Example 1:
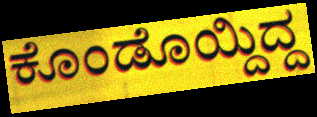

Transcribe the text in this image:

ಕೊಂಡೊಯ್ದಿದ್ದ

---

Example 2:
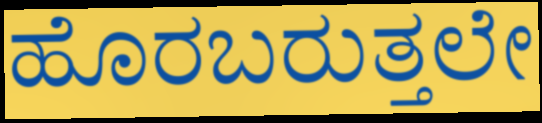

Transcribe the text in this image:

ಹೊರಬರುತ್ತಲೇ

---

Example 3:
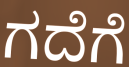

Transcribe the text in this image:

ಗದೆಗೆ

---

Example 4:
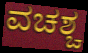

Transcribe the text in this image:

ವಚಶ್ಚ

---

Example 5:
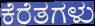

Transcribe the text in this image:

ಕೆರೆತಗಳು